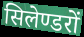
सिलेण्डरों